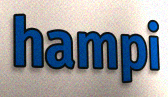
hampi